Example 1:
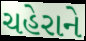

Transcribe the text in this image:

ચહેરાને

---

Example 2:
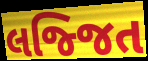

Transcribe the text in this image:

લજ્જિત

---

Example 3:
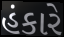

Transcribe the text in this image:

હંકારે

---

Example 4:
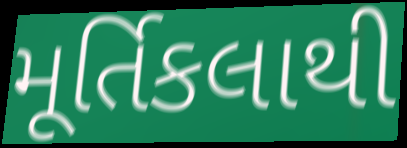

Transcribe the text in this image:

મૂર્તિકલાથી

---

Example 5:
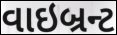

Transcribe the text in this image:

વાઇબ્રન્ટ